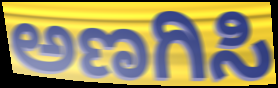
ಅಣಗಿಸಿ